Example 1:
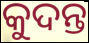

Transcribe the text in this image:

କୁଦନ୍ତ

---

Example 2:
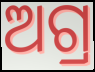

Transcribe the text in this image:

ଅଗ୍ର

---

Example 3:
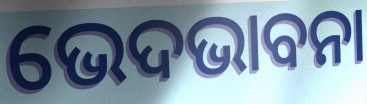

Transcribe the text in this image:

ଭେଦଭାବନା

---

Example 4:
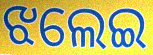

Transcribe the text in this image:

ଝଲେଇ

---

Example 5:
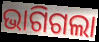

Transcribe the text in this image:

ଭାଗିଗଲା